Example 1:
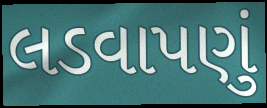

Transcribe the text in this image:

લડવાપણું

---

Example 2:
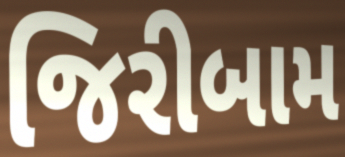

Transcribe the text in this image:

જિરીબામ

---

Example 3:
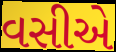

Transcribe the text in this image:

વસીએ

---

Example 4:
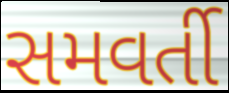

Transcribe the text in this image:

સમવર્તી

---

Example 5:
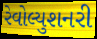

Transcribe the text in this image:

રેવોલ્યુશનરી